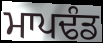
ਮਾਪਢੰਡ